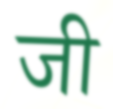
जी